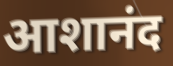
आशानंद